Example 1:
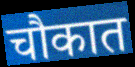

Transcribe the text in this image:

चौकात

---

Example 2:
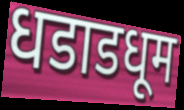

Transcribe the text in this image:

धडाडधूम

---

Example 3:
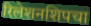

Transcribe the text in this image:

रिलेशनशिपचा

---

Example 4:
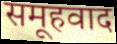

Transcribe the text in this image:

समूहवाद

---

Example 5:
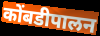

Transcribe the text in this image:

कोंबडीपालन